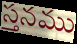
స్తనము